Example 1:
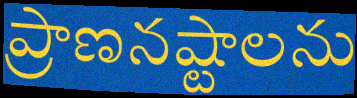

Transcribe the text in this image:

ప్రాణనష్టాలను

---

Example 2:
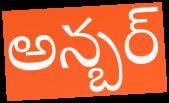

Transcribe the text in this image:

అన్బర్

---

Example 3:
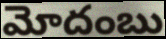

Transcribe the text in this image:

మోదంబు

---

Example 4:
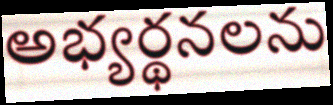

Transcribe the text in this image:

అభ్యర్థనలను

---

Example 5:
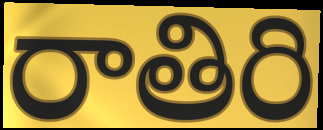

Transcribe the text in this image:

రాతిరి